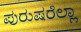
ಪುರುಷರೆಲ್ಲಾ